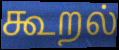
கூறல்